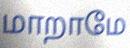
மாறாமே